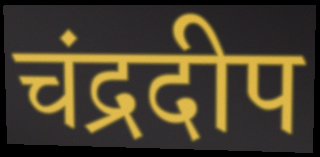
चंद्रदीप